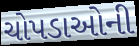
ચોપડાઓની